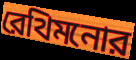
রেথিমনোর